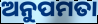
ଅନୁପମତା